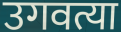
उगवत्या